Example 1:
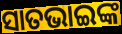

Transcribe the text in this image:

ସାତଭାଇଙ୍କ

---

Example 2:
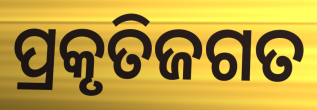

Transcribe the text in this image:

ପ୍ରକୃତିଜଗତ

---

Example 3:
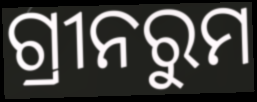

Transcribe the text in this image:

ଗ୍ରୀନରୁମ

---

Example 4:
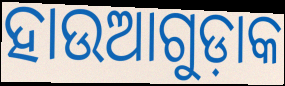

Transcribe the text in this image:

ହାଉଆଗୁଡ଼ାକ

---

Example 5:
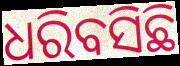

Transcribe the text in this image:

ଧରିବସିଛି